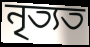
নৃত্যত